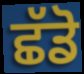
ਛੱਡੋ